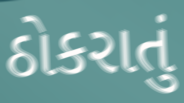
ઠોકરાતું